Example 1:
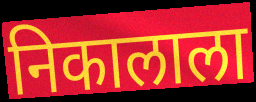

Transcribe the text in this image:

निकालाला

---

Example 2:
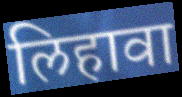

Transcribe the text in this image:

लिहावा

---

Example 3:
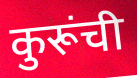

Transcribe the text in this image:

कुरूंची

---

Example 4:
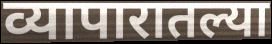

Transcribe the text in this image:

व्यापारातल्या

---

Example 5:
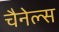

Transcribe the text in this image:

चैनेल्स